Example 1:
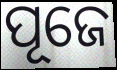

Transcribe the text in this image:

ପୂଜେ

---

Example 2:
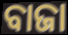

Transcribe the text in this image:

ବାଜା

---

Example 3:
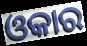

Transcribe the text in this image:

ଓକାର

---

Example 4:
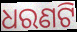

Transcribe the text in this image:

ଧରଣଟି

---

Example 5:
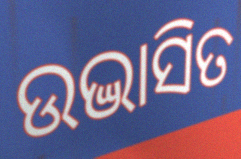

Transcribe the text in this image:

ଉଦ୍ଭାସିତ